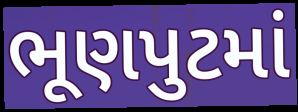
ભૂણપુટમાં